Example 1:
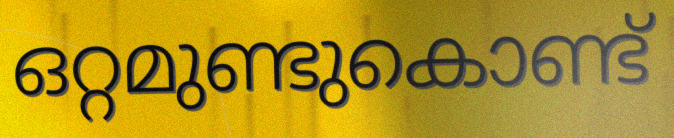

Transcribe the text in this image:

ഒറ്റമുണ്ടുകൊണ്ട്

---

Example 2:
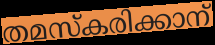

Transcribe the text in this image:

തമസ്കരിക്കാന്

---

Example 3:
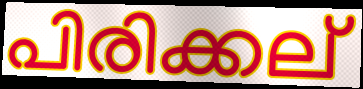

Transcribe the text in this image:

പിരിക്കല്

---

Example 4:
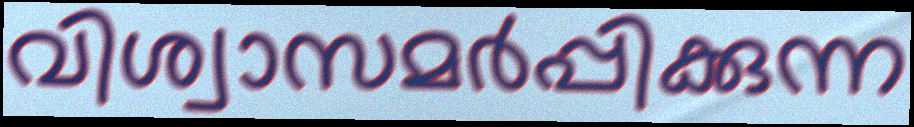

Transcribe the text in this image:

വിശ്വാസമർപ്പിക്കുന്ന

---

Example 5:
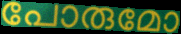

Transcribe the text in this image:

പോരുമോ